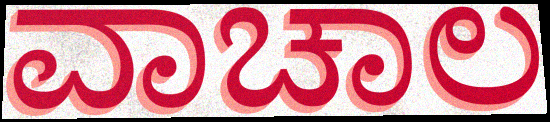
ವಾಚಾಲ